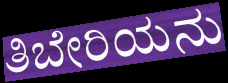
ತಿಬೇರಿಯನು